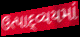
ઉત્પાદ્વ્યયમાં